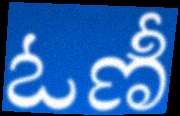
ఓణీ